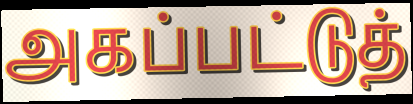
அகப்பட்டுத்